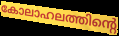
കോലാഹലത്തിന്റെ